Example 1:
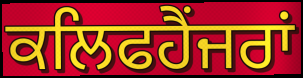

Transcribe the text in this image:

ਕਲਿਫਹੈਂਜਰਾਂ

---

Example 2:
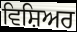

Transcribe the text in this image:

ਵਿਸ਼ਿਅਰ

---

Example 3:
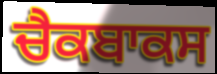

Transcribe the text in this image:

ਚੈਕਬਾਕਸ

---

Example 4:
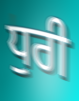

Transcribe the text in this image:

ਧੁਰੀ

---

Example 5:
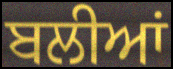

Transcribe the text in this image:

ਬਲੀਆਂ